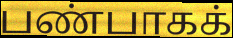
பண்பாகக்